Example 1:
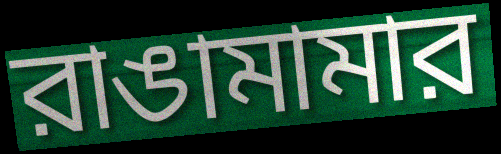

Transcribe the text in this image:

রাঙামামার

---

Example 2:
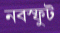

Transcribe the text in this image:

নবস্ফুট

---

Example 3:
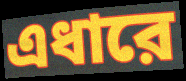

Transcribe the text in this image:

এধারে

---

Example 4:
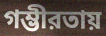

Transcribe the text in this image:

গম্ভীরতায়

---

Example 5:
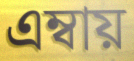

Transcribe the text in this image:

এম্বায়